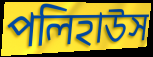
পলিহাউস